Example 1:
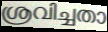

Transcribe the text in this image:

ശ്രവിച്ചതാ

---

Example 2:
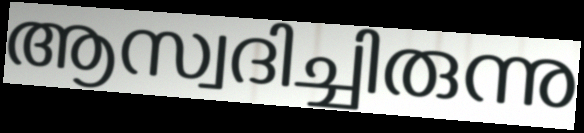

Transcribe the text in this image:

ആസ്വദിച്ചിരുന്നു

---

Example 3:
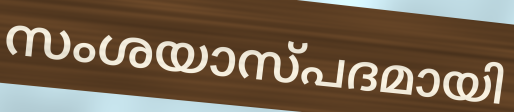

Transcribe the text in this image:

സംശയാസ്പദമായി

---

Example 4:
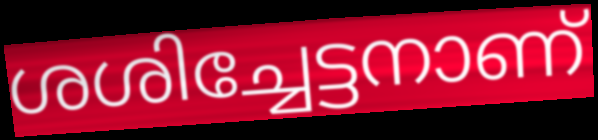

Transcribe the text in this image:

ശശിച്ചേട്ടനാണ്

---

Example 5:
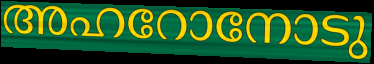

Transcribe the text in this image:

അഹറോനോടു